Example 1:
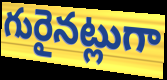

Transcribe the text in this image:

గురైనట్లుగా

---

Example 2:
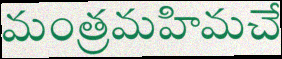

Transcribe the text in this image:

మంత్రమహిమచే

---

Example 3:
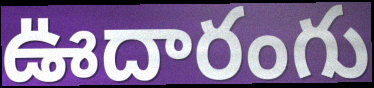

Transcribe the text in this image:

ఊదారంగు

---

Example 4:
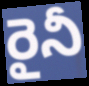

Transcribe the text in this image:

రైనీ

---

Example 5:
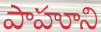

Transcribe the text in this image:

పాహూని